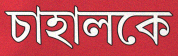
চাহালকে